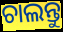
ଚାଲନ୍ତୁ